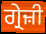
ਗ੍ਰੇਜ਼ੀ